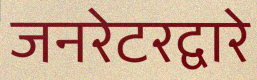
जनरेटरद्वारे